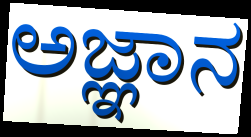
ಅಜ್ಞಾನ